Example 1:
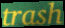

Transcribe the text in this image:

trash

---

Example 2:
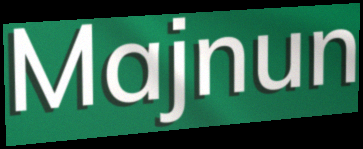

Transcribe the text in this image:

Majnun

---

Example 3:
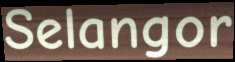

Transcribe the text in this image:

Selangor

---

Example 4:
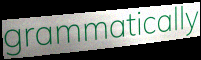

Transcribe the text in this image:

grammatically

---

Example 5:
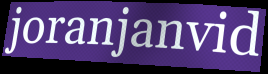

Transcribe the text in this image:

joranjanvid